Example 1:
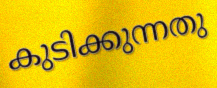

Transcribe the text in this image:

കുടിക്കുന്നതു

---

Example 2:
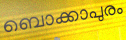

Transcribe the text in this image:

ബൊക്കാപുരം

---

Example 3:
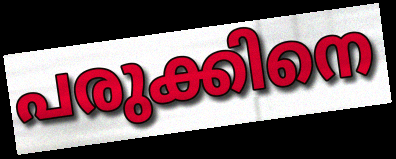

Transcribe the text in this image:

പരുക്കിനെ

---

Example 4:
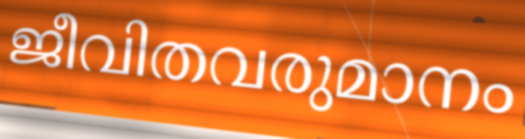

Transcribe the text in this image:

ജീവിതവരുമാനം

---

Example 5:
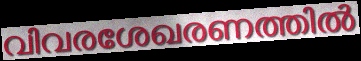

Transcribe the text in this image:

വിവരശേഖരണത്തിൽ